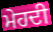
ਮੇਹਦੀ